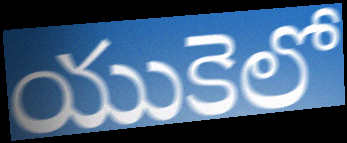
యుకెలో